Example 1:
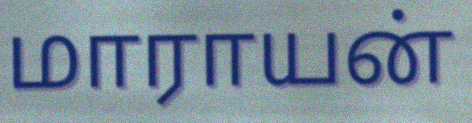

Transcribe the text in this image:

மாராயன்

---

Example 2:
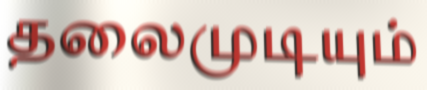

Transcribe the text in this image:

தலைமுடியும்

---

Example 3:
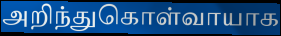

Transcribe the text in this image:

அறிந்துகொள்வாயாக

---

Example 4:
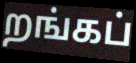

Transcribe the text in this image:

றங்கப்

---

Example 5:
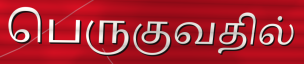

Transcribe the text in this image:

பெருகுவதில்